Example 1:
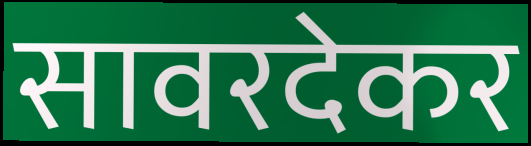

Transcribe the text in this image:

सावरदेकर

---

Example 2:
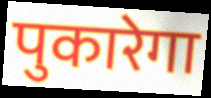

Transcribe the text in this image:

पुकारेगा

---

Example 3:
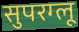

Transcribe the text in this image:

सुपरग्लू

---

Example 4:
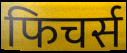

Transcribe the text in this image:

फिचर्स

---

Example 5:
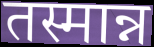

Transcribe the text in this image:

तस्मान्न